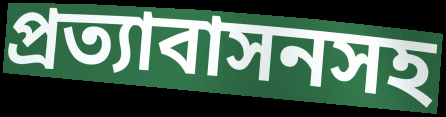
প্রত্যাবাসনসহ